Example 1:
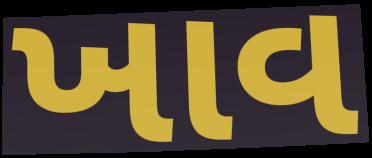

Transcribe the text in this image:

ખાવ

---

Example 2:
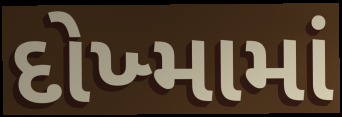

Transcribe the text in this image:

દોખ્મામાં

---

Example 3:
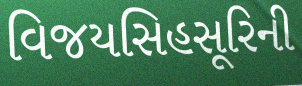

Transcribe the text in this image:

વિજયસિહસૂરિની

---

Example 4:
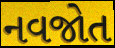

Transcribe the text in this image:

નવજોત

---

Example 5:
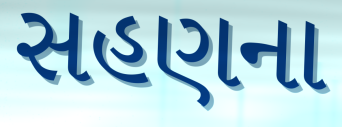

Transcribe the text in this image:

સહણના